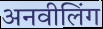
अनवीलिंग